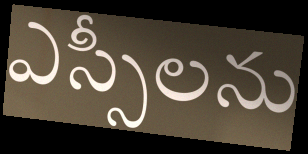
ఎస్సీలను